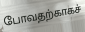
போவதற்காகச்